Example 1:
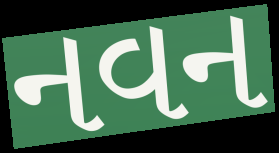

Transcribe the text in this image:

નવન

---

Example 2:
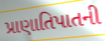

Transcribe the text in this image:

પ્રાણાતિપાતની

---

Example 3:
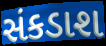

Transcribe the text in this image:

સંકડાશ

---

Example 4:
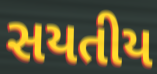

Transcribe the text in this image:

સયતીય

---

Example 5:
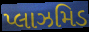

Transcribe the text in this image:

પ્લાઝમિડ